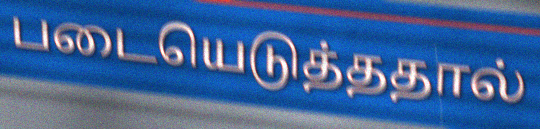
படையெடுத்ததால்